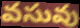
వసువు